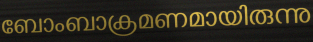
ബോംബാക്രമണമായിരുന്നു